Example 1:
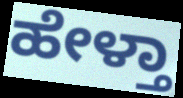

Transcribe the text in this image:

ಹೇಳ್ತಾ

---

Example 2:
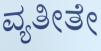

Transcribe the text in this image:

ವ್ಯತೀತೇ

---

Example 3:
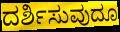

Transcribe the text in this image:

ದರ್ಶಿಸುವುದೂ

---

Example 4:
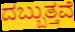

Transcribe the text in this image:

ದಬ್ಬುತ್ತವೆ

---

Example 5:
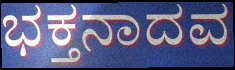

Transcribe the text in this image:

ಭಕ್ತನಾದವ